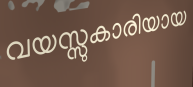
വയസ്സുകാരിയായ